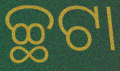
ଚ୍ଛଟା